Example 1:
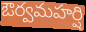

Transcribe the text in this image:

ఔర్వమహర్షి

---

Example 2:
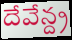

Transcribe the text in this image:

దేవేన్ద్ర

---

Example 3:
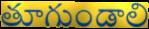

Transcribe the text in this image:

తూగుండాలి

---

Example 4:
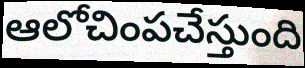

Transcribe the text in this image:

ఆలోచింపచేస్తుంది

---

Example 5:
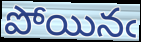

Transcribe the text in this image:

పోయినఁ